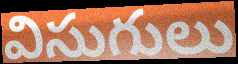
విసుగులు